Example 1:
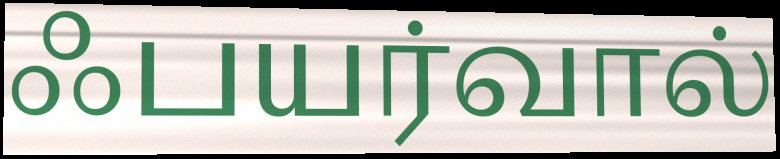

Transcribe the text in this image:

ஃபயர்வால்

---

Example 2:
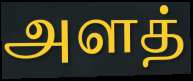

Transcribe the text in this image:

அளத்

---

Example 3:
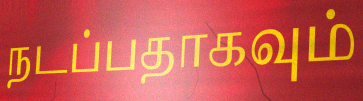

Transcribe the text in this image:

நடப்பதாகவும்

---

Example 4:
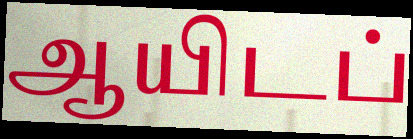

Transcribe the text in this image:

ஆயிடப்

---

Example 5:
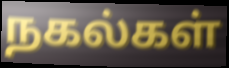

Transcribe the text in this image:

நகல்கள்